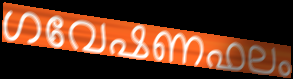
ഗവേഷണഫലം